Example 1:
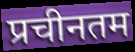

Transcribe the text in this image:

प्रचीनतम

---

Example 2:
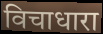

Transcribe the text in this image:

विचाधारा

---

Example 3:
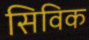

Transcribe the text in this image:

सिविक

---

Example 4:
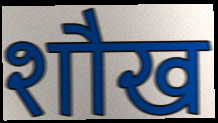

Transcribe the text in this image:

शौख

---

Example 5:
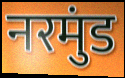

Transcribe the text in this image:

नरमुंड